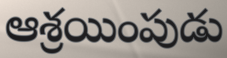
ఆశ్రయింపుడు